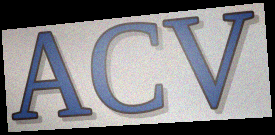
ACV